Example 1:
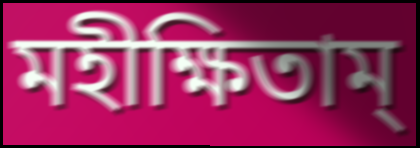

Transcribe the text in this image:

মহীক্ষিতাম্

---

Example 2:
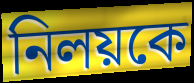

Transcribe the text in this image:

নিলয়কে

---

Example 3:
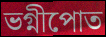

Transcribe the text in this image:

ভগ্নীপোত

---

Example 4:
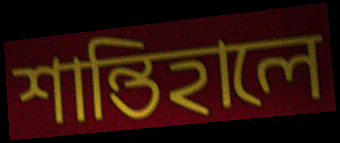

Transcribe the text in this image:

শান্তিহালে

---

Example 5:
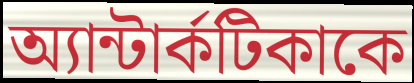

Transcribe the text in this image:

অ্যান্টার্কটিকাকে